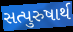
સત્પુરુષાર્થ